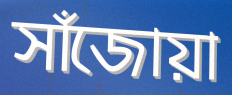
সাঁজোয়া